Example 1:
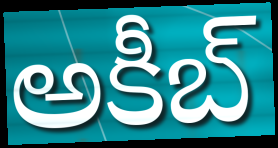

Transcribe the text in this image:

అకీబ్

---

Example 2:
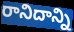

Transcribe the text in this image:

రానిదాన్ని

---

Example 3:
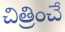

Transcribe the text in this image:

చిత్రించే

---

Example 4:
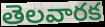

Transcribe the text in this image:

తెలవారక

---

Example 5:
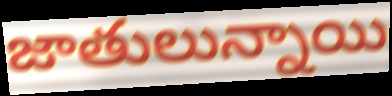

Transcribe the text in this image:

జాతులున్నాయి